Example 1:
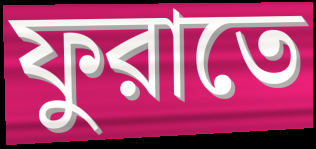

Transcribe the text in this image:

ফুরাতে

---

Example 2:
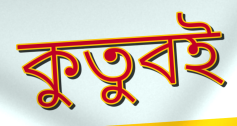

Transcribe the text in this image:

কুতুবই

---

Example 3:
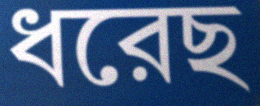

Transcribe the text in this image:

ধরেছ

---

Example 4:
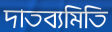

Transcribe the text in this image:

দাতব্যমিতি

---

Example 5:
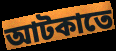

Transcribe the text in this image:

আটকাতে